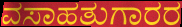
ವಸಾಹತುಗಾರರ